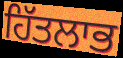
ਹਿੱਤਲਾਭ